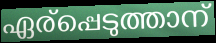
ഏര്പ്പെടുത്താന്